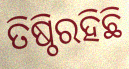
ତିଷ୍ଠିରହିଛି